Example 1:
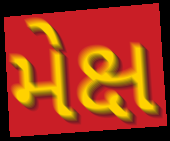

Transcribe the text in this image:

મેક્ષ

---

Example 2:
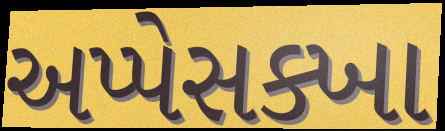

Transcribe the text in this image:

અપ્પેસક્ખા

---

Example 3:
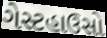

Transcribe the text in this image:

ગેસ્ટહાઉસો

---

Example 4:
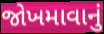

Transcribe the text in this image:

જોખમાવાનું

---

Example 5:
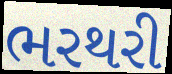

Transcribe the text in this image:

ભરથરી